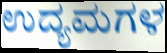
ಉದ್ಯಮಗಳ